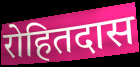
रोहितदास